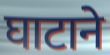
घाटाने